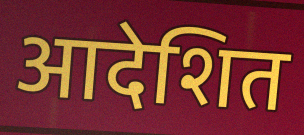
आदेशित